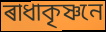
ৰাধাকৃষ্ণনে